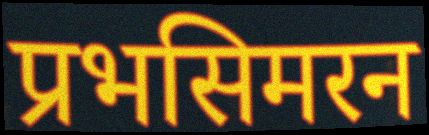
प्रभसिमरन